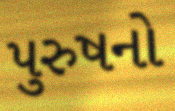
પુરુષનો